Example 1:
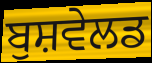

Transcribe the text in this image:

ਬੁਸ਼ਵੇਲਡ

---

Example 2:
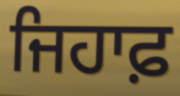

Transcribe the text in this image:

ਜਿਹਾਫ਼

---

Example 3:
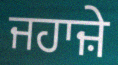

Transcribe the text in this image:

ਜਹਾਜ਼ੇ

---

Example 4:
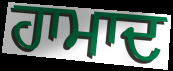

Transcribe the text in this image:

ਹਾਮਾਦ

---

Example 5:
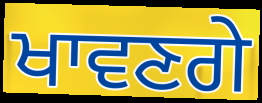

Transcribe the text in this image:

ਖਾਵਣਗੇ